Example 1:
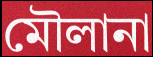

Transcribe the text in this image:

মৌলানা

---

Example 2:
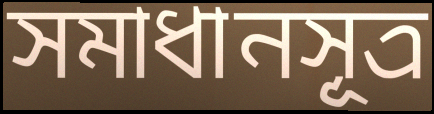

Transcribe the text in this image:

সমাধানসূত্ৰ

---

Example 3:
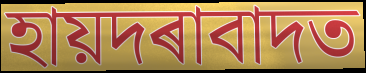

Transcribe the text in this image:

হায়দৰাবাদত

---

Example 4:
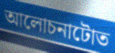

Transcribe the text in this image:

আলোচনাটোত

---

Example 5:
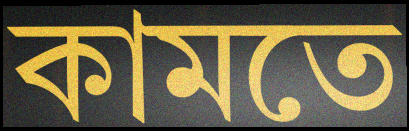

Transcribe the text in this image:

কামতে